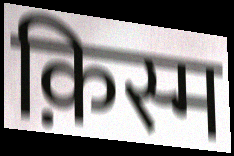
क़िस्‍म